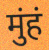
मुंहं